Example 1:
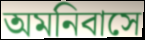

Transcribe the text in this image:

অমনিবাসে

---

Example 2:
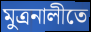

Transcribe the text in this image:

মুত্রনালীতে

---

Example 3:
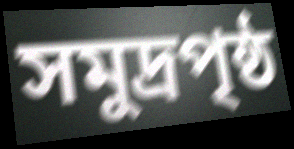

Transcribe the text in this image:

সমুদ্রপৃষ্ঠ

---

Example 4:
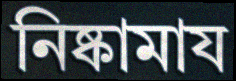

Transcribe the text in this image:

নিষ্কামায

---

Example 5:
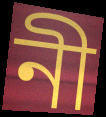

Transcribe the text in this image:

নী